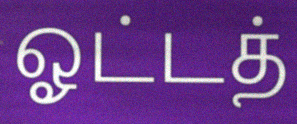
ஓட்டத்